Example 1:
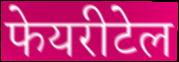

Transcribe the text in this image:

फेयरीटेल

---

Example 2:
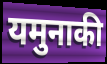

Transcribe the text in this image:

यमुनाकी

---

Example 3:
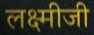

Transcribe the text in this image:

लक्ष्मीजी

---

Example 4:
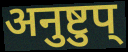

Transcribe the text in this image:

अनुष्टुप्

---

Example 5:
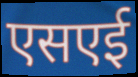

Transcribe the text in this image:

एसएई